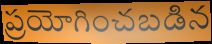
ప్రయోగించబడిన